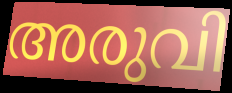
അരുവി